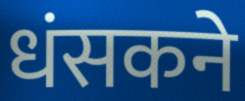
धंसकने